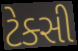
ટેક્સી